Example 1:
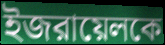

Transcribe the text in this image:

ইজরায়েলকে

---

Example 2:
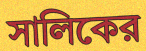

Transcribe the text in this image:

সালিকের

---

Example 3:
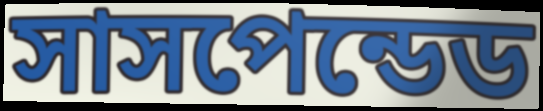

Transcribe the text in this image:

সাসপেন্ডেড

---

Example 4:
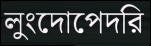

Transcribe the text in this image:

লুংদোপেদরি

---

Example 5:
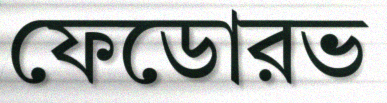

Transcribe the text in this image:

ফেডোরভ